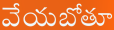
వేయబోతూ